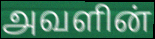
அவளின்